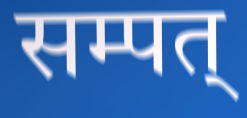
सम्पत्